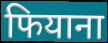
फियाना